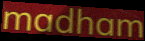
madham